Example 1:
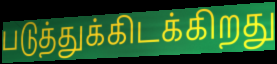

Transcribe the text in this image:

படுத்துக்கிடக்கிறது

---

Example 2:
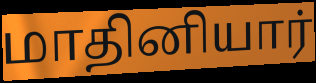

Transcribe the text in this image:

மாதினியார்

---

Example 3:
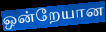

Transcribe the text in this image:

ஒன்றேயான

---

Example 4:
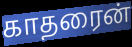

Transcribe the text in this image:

காதரைன்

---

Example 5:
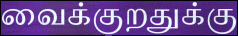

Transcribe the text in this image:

வைக்குறதுக்கு